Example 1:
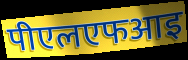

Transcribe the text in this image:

पीएलएफआइ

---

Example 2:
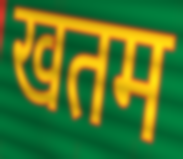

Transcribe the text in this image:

खतम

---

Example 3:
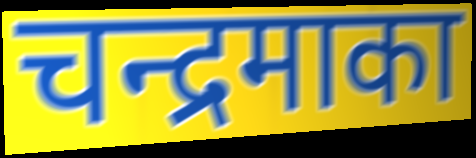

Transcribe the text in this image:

चन्द्रमाका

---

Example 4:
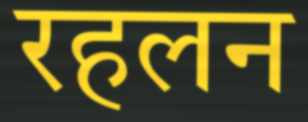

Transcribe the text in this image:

रहलन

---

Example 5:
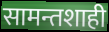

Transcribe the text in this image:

सामन्तशाही